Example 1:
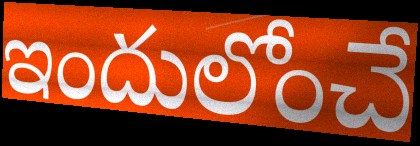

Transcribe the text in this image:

ఇందులోంచే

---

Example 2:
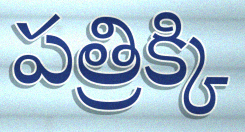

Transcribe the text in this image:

పత్రిక్కి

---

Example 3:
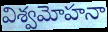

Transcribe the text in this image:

విశ్వమోహనా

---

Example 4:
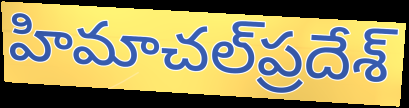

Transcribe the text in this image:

హిమాచల్‌ప్రదేశ్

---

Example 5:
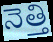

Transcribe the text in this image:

నెత్తి